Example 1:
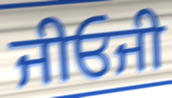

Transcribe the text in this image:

ਜੀਓਜੀ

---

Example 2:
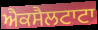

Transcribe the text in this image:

ਐਕਸੈਲਟਾਟਾ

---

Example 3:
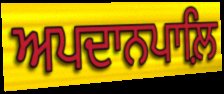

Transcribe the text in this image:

ਅਪਦਾਨਪਾਲ਼ਿ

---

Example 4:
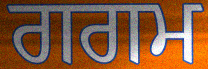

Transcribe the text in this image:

ਗਗਮ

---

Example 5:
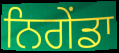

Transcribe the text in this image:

ਨਿਗੇਂਡਾ